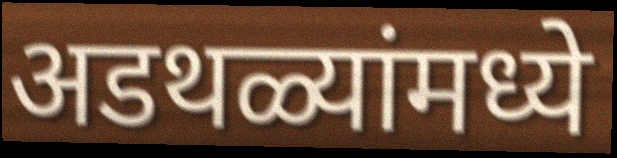
अडथळ्यांमध्ये